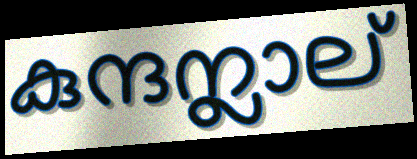
കുന്ദന്ലാല്